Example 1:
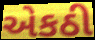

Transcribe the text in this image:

એકઠી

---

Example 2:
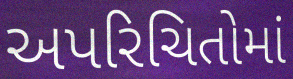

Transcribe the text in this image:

અપરિચિતોમાં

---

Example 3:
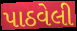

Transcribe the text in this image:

પાઠવેલી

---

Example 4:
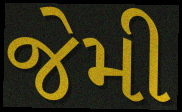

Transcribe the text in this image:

જેમી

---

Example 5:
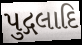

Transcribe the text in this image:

પુદ્ગલાદિ